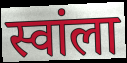
स्वांला